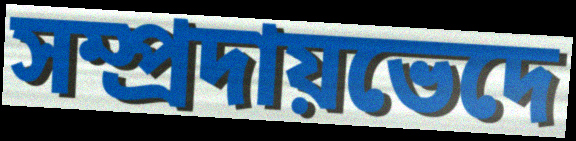
সম্প্রদায়ভেদে